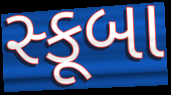
સ્કૂબા